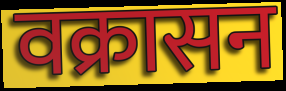
वक्रासन